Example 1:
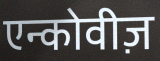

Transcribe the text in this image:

एन्कोवीज़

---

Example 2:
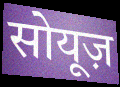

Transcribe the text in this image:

सोयूज़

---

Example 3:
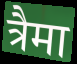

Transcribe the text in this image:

त्रैमा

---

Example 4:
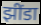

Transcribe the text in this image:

झींडा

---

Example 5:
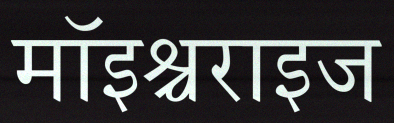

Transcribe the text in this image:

मॉइश्चराइज